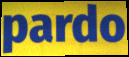
pardo